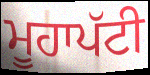
ਮੂਹਾਪੱਟੀ